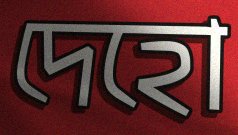
দেহো